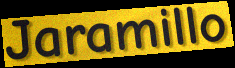
Jaramillo